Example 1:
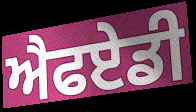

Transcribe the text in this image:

ਐਫਏਡੀ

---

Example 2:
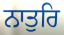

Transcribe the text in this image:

ਨਾਤੁਰਿ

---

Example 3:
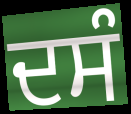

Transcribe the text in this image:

ਦਸੰ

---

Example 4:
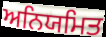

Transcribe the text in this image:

ਅਨਿਯਮਿਤ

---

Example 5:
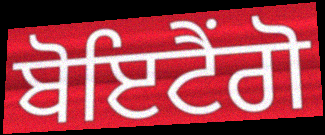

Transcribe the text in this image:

ਬੋਇਟੈਂਗੋ